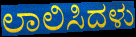
ಲಾಲಿಸಿದಳು